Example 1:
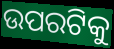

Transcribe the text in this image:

ଉପରଟିକୁ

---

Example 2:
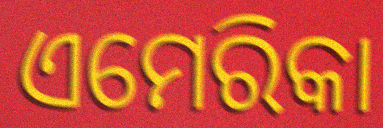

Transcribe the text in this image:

ଏମେରିକା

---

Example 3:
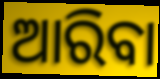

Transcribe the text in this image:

ଆରିବା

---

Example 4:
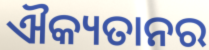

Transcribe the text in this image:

ଐକ୍ୟତାନର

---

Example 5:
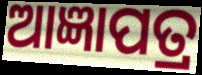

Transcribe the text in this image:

ଆଜ୍ଞାପତ୍ର